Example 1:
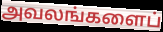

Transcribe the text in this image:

அவலங்களைப்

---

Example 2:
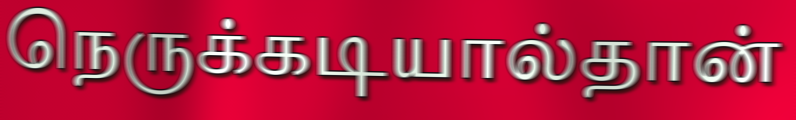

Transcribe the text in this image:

நெருக்கடியால்தான்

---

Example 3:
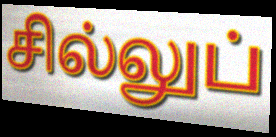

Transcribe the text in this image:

சில்லுப்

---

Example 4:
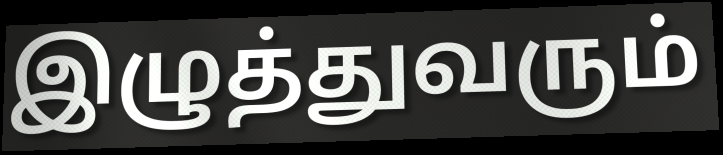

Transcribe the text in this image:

இழுத்துவரும்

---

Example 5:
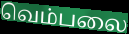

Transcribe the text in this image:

வெம்பலை